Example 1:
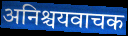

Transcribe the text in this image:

अनिश्चयवाचक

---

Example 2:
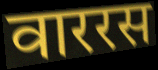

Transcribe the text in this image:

वाररस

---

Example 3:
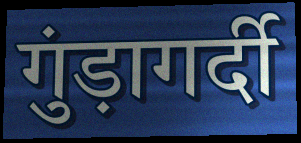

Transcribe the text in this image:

गुंड़ागर्दी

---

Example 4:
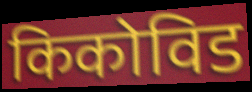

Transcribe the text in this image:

किकोविड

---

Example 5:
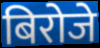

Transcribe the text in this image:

बिरोजे